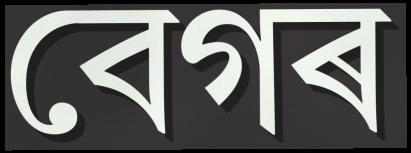
বেগৰ